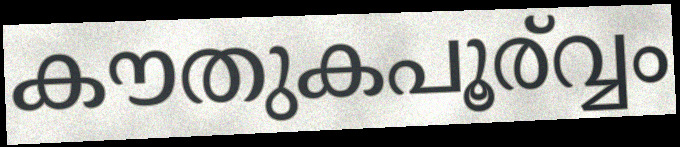
കൗതുകപൂര്വ്വം